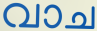
വാച